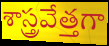
శాస్త్రవేత్తగా